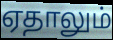
ஏதாலும்